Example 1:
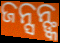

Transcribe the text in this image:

ଜନ୍ସନ୍ଙ୍କ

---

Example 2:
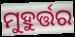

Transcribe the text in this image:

ମୁହୁର୍ତ୍ତର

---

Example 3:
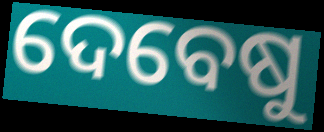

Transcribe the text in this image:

ଦେବେଷୁ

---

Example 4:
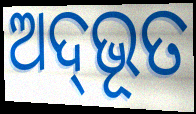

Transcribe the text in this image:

ଅଦ୍‍ଭୂତ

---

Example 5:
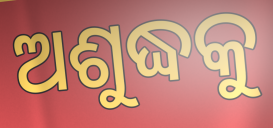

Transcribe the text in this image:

ଅଶୁଦ୍ଧକୁ